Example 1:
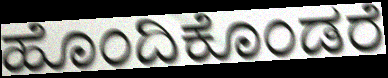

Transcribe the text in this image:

ಹೊಂದಿಕೊಂಡರೆ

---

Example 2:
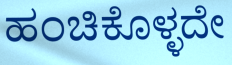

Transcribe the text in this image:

ಹಂಚಿಕೊಳ್ಳದೇ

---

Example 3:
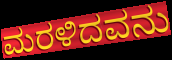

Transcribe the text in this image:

ಮರಳಿದವನು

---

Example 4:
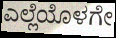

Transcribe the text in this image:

ಎಲ್ಲೆಯೊಳಗೇ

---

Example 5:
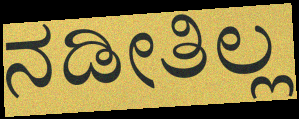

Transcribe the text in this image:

ನಡೀತಿಲ್ಲ